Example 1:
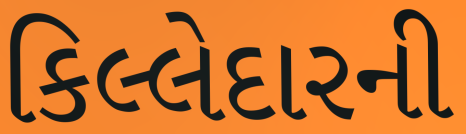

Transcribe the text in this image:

કિલ્લેદારની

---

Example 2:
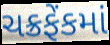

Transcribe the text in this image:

ચક્રફેંકમાં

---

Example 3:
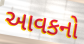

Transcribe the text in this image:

આવકનો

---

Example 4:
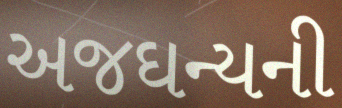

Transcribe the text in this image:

અજઘન્યની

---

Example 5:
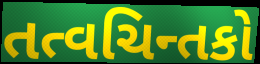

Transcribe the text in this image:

તત્વચિન્તકો